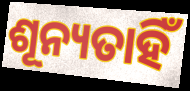
ଶୂନ୍ୟତାହିଁ